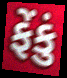
ફેંકું